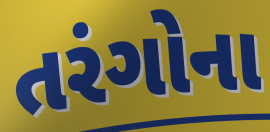
તરંગોના